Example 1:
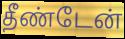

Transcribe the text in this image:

தீண்டேன்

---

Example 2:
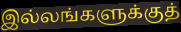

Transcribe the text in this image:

இல்லங்களுக்குத்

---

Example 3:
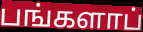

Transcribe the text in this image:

பங்களாப்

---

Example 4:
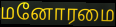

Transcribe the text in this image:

மனோரமை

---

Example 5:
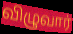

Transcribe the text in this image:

விழுவார்